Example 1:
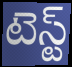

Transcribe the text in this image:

టెస్ట్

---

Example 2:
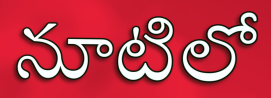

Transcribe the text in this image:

నూటిలో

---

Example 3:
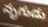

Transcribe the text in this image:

నృగుడు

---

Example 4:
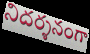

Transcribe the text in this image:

నిదర్శనంగా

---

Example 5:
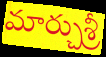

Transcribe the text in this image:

మార్చుశ్రీ